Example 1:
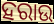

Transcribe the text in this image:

ହରାଉ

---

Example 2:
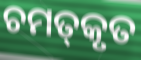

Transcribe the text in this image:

ଚମତ୍‍କୃତ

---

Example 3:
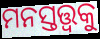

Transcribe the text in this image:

ମନସ୍ତତ୍ତ୍ୱକୁ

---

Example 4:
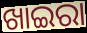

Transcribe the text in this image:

ଖାଇରା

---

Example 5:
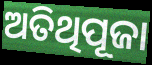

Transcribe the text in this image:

ଅତିଥିପୂଜା